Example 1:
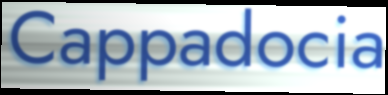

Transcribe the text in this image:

Cappadocia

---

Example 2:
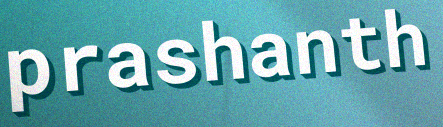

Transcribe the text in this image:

prashanth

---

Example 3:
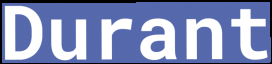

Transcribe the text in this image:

Durant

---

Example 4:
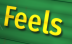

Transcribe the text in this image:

Feels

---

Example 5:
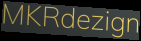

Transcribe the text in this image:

MKRdezign